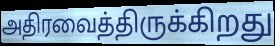
அதிரவைத்திருக்கிறது